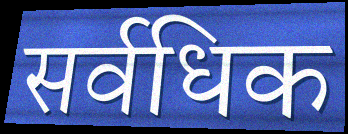
सर्वधिक